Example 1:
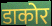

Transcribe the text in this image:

डाकोर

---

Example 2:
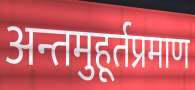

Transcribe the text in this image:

अन्तमुहूर्तप्रमाण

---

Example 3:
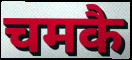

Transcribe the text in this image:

चमकै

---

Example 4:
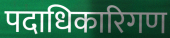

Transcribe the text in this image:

पदाधिकारिगण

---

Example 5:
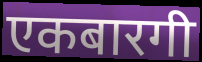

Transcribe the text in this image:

एकबारगी